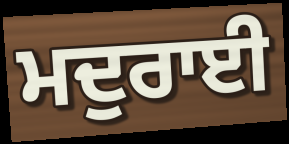
ਮਦੁਰਾਈ